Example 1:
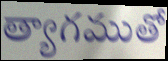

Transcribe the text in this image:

త్యాగముతో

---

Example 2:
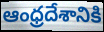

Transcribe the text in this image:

ఆంధ్రదేశానికి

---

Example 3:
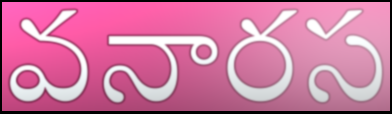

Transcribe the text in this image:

వనారస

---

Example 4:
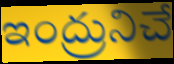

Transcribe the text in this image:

ఇంద్రునిచే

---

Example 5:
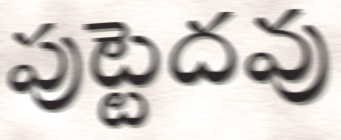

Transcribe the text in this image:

పుట్టెదవు